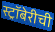
स्ट्रॉबेरीची